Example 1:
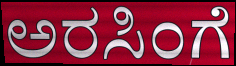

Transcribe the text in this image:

ಅರಸಿಂಗೆ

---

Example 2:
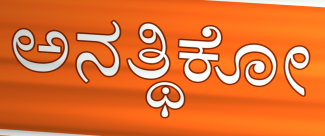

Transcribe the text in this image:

ಅನತ್ಥಿಕೋ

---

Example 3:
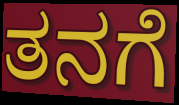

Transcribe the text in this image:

ತನಗೆ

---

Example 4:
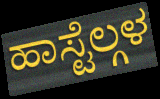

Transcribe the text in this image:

ಹಾಸ್ಟೆಲ್ಗಳ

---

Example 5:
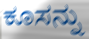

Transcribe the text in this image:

ಕೂಸನ್ನು